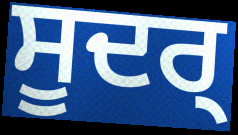
ਸੂਦਰ੍